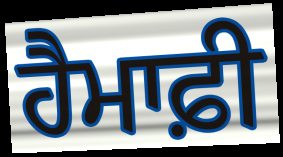
ਹੈਮਾਫ਼ੀ